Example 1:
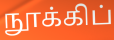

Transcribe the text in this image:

நூக்கிப்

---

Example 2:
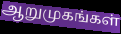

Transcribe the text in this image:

ஆறுமுகங்கள்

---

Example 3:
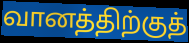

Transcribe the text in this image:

வானத்திற்குத்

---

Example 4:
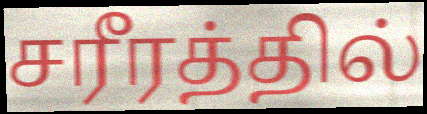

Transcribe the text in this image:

சரீரத்தில்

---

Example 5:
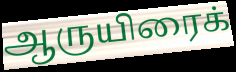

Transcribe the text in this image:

ஆருயிரைக்